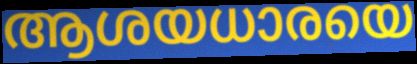
ആശയധാരയെ